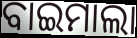
ବାଇମାଲା